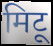
मिटू